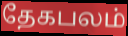
தேகபலம்